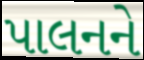
પાલનને